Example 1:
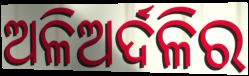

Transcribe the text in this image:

ଅଳିଅର୍ଦଳିର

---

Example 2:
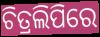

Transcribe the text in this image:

ଚିତ୍ରଲିପିରେ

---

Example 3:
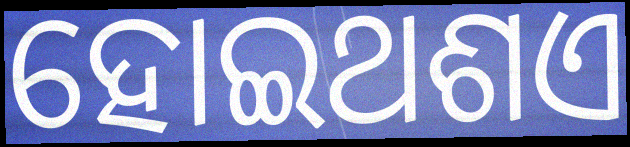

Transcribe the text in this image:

ହୋଇଥଶଏ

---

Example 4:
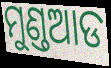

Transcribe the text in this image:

ମୁଣ୍ଡଆଡ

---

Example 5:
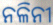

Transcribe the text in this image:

ନଳିନୀ